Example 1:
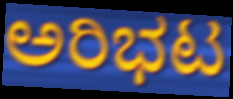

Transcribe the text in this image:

ಅರಿಭಟ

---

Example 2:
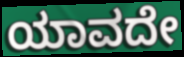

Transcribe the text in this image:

ಯಾವದೇ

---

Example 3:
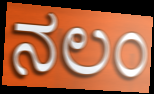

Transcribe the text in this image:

ನಲಂ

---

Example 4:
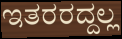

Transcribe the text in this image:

ಇತರರದ್ದಲ್ಲ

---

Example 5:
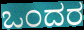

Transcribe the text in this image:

ಒಂದರ